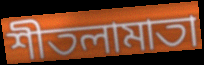
শীতলামাতা